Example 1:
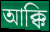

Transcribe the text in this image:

আক্কি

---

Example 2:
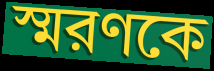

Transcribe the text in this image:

স্মরণকে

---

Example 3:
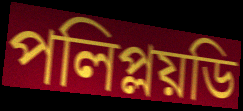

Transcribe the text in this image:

পলিপ্লয়ডি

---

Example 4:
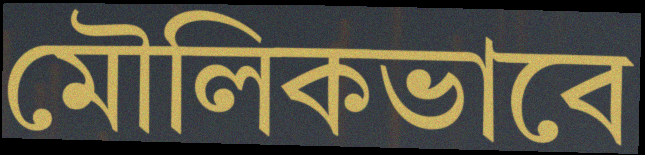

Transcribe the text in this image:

মৌলিকভাবে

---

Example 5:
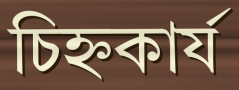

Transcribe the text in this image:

চিহ্নকার্য